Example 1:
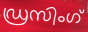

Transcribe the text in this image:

ഡ്രസിംഗ്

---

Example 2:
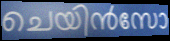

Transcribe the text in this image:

ചെയിൻസോ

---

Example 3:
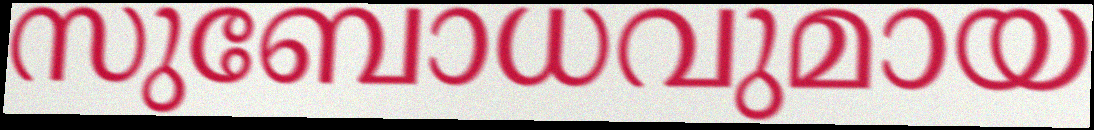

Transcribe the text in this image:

സുബോധവുമായ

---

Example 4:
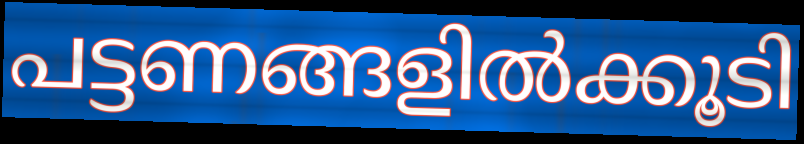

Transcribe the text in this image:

പട്ടണങ്ങളിൽക്കൂടി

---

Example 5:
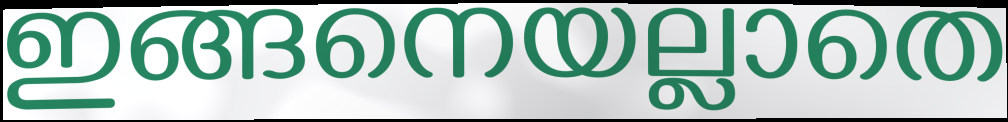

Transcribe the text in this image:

ഇങ്ങനെയല്ലാതെ